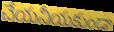
చేయనీయకుండా